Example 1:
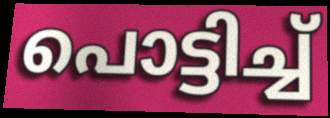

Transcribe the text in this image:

പൊട്ടിച്ച്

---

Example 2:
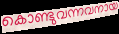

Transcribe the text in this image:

കൊണ്ടുവന്നവനായ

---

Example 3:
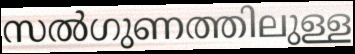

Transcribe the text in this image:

സൽഗുണത്തിലുള്ള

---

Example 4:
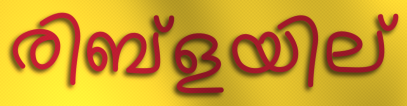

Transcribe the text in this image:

രിബ്ളയില്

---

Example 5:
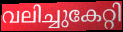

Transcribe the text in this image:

വലിച്ചുകേറ്റി